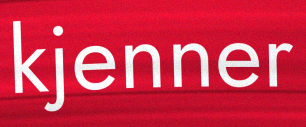
kjenner